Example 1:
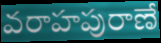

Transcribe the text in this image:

వరాహపురాణే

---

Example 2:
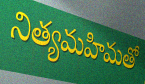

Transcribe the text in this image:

నిత్యమహిమతో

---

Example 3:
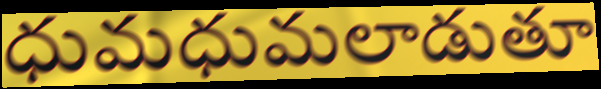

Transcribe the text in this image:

ధుమధుమలాడుతూ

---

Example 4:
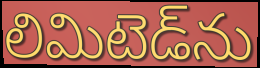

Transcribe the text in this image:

లిమిటెడ్‌ను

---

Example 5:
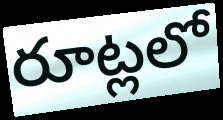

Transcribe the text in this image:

రూట్లలో